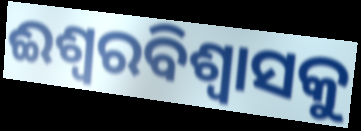
ଈଶ୍ୱରବିଶ୍ୱାସକୁ